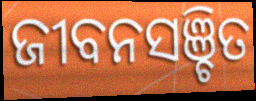
ଜୀବନସଞ୍ଚିତ